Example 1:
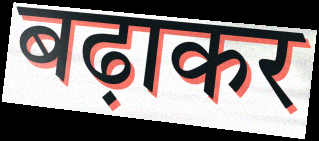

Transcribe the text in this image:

बढ़ाकर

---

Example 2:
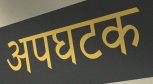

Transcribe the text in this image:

अपघटक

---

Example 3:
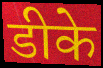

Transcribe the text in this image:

डीके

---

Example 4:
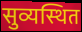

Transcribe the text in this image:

सुव्यस्थित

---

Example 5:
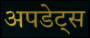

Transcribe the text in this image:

अपडेट्स